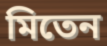
মিতেন